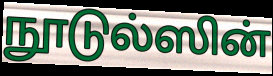
நூடுல்ஸின்